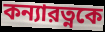
কন্যারত্নকে